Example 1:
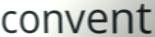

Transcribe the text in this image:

convent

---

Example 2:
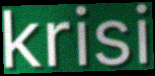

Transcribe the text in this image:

krisi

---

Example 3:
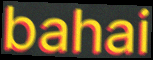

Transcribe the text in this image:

bahai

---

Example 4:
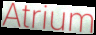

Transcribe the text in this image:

Atrium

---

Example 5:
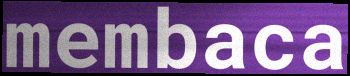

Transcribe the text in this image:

membaca